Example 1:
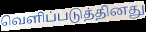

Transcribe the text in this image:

வெளிப்படுத்தினது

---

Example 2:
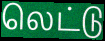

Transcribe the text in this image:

லெட்டு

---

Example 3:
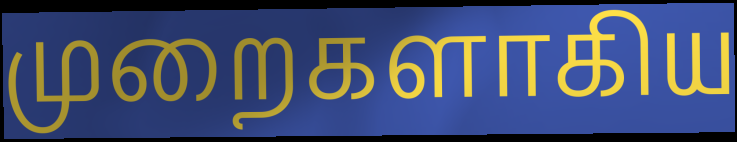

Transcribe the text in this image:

முறைகளாகிய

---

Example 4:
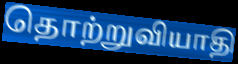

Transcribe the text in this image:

தொற்றுவியாதி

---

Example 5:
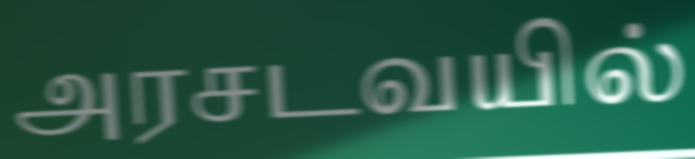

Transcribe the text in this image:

அரசடவயில்